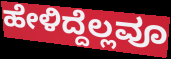
ಹೇಳಿದ್ದೆಲ್ಲವೂ